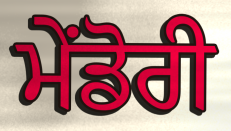
ਮੇਂਡੋਰੀ